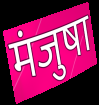
मंजुषा